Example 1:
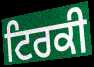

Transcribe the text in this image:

ਟਿਰਕੀ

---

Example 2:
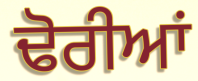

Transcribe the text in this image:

ਢੋਰੀਆਂ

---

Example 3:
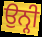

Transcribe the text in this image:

ਉਨ੍ਨੀ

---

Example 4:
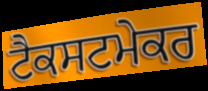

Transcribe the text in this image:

ਟੈਕਸਟਮੇਕਰ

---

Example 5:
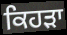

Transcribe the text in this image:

ਕਿਹੜਾ